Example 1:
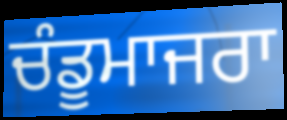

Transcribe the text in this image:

ਚੰਡੂਮਾਜਰਾ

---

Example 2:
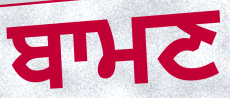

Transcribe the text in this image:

ਬਾਮਣ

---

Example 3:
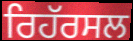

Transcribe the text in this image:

ਰਿਹੱਰਸਲ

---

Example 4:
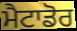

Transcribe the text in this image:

ਮੈਟਾਡੋਰ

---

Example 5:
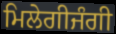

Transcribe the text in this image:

ਮਿਲੇਗੀਜੰਗੀ